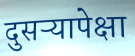
दुसऱ्यापेक्षा